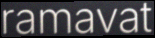
ramavat